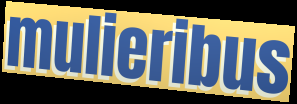
mulieribus